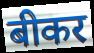
बीकर